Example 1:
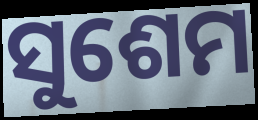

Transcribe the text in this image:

ସୁଶେମ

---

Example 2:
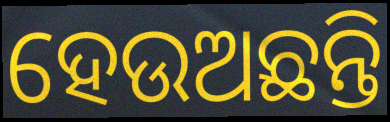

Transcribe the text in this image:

ହେଉଅଛନ୍ତି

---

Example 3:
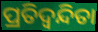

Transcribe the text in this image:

ପ୍ରତିଦ୍ୱନ୍ଦିତା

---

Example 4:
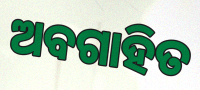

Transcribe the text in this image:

ଅବଗାହିତ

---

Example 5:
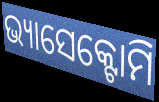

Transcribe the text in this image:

ଭ୍ୟାସେକ୍ଟୋମି